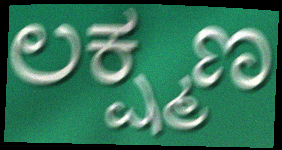
ಲಕ್ಷ್ಮಣ